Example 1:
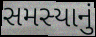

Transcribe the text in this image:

સમસ્યાનું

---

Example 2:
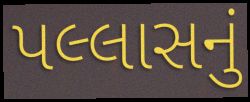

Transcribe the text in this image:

પલ્લાસનું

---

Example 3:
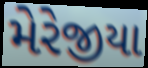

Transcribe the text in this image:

મેરેજીયા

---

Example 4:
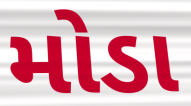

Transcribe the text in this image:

મોડા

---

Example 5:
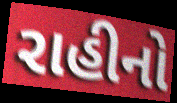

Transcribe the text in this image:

રાહીનો